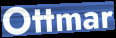
Ottmar